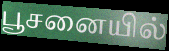
பூசனையில்